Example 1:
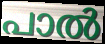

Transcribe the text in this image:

പാൽ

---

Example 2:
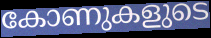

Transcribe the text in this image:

കോണുകളുടെ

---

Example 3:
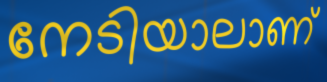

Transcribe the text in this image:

നേടിയാലാണ്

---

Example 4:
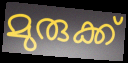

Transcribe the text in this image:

മുരുക്ക്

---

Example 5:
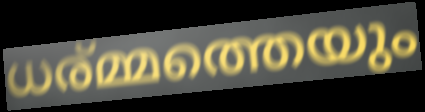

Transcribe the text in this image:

ധര്മ്മത്തെയും